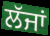
ਲੱਜਾਂ